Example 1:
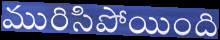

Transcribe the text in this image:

మురిసిపోయింది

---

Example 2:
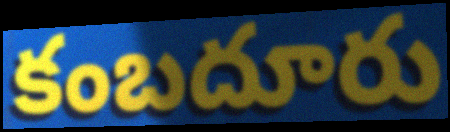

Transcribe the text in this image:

కంబదూరు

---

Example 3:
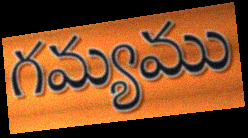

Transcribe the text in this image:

గమ్యము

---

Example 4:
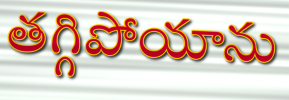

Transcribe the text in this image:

తగ్గిపోయాను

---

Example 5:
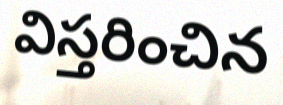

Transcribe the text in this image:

విస్తరించిన